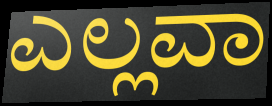
ಎಲ್ಲವಾ